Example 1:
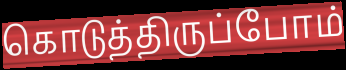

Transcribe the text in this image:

கொடுத்திருப்போம்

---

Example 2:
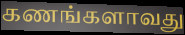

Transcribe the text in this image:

கணங்களாவது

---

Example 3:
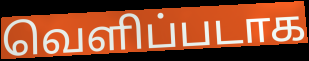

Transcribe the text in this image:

வெளிப்படாக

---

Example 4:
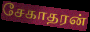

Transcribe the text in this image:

சேகாதரன்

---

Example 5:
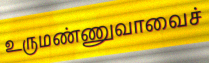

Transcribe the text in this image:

உருமண்ணுவாவைச்